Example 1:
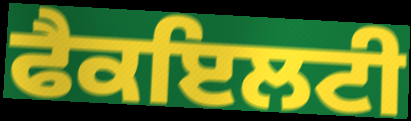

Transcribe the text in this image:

ਫੈਕਇਲਟੀ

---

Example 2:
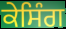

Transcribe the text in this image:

ਕੇਸਿੰਗ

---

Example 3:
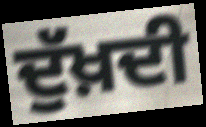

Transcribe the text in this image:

ਦੁੱਖ਼ਦੀ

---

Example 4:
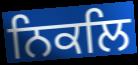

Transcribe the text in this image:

ਨਿਕਲਿ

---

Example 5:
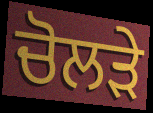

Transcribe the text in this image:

ਚੋਲੜੇ